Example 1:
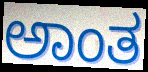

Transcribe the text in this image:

ಅಾಂತ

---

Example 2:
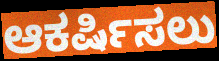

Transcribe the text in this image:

ಆಕರ್ಷಿಸಲು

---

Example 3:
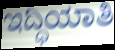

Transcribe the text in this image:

ಇದ್ಧಿಯಾತಿ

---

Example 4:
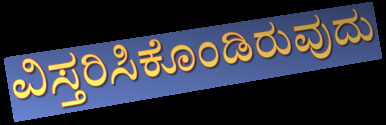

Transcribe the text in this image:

ವಿಸ್ತರಿಸಿಕೊಂಡಿರುವುದು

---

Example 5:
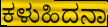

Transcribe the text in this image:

ಕಳುಹಿದನಾ